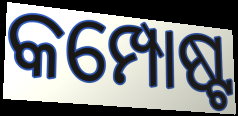
କମ୍ପୋଷ୍ଟ